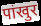
पांखुर